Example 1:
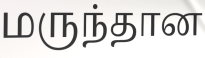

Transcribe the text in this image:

மருந்தான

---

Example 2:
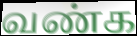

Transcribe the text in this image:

வண்க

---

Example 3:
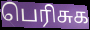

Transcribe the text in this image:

பெரிசுக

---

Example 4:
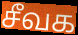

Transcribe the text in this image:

சீவக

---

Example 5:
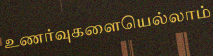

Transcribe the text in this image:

உணர்வுகளையெல்லாம்